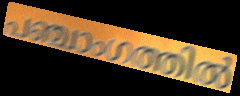
പഞ്ചാംഗത്തിൽ